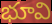
భూవి